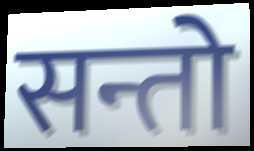
सन्तो